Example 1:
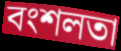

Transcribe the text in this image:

বংশলতা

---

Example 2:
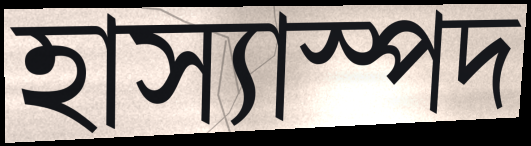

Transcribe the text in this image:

হাস্যাস্পদ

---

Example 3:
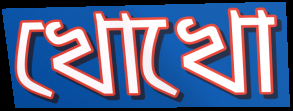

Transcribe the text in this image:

খোখো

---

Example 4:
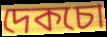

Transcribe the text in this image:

দেকচো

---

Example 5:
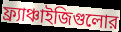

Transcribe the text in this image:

ফ্র্যাঞ্চাইজিগুলোর